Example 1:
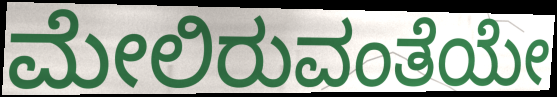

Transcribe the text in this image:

ಮೇಲಿರುವಂತೆಯೇ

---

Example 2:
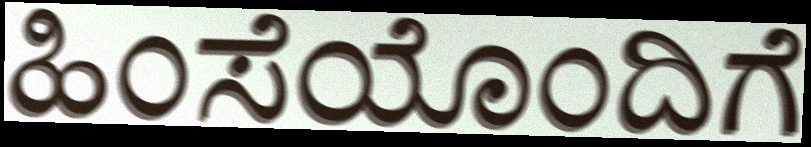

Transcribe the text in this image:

ಹಿಂಸೆಯೊಂದಿಗೆ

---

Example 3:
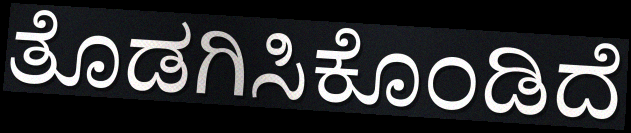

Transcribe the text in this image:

ತೊಡಗಿಸಿಕೊಂಡಿದೆ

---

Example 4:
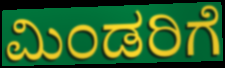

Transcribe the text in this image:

ಮಿಂಡರಿಗೆ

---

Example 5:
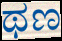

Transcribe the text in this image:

ಥಣ